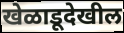
खेळाडूदेखील